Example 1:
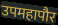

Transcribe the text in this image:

उपमहापौर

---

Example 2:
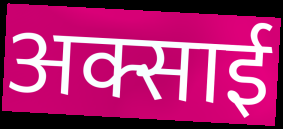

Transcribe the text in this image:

अक्साई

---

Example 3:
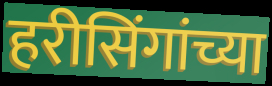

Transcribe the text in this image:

हरीसिंगांच्या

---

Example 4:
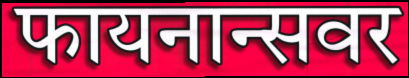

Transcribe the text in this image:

फायनान्सवर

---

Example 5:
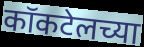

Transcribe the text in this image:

कॉकटेलच्या